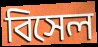
বিসেল